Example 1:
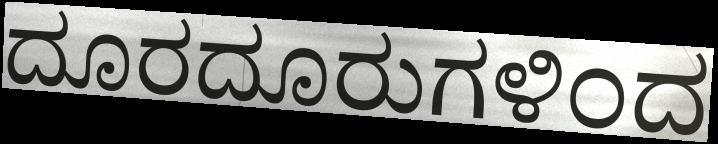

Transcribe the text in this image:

ದೂರದೂರುಗಳಿಂದ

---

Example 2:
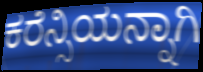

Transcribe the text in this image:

ಕರೆನ್ಸಿಯನ್ನಾಗಿ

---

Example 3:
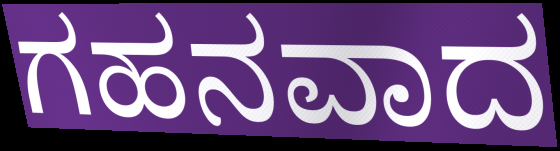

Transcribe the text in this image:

ಗಹನವಾದ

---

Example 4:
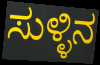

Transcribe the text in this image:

ಸುಳ್ಳಿನ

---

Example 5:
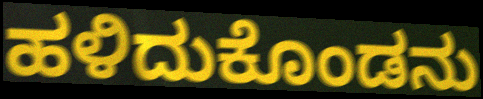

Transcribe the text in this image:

ಹಳಿದುಕೊಂಡನು